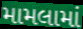
મામલામાં